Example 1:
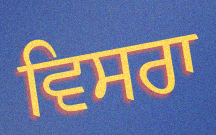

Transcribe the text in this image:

ਵਿਸਰਾ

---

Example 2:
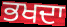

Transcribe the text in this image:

ਭਖਦਾ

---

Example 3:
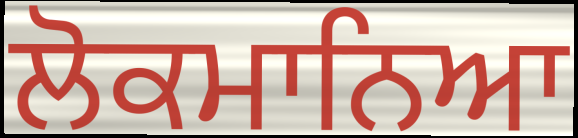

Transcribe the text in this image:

ਲੋਕਮਾਨਿਆ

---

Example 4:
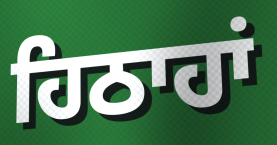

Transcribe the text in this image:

ਹਿਠਾਹਾਂ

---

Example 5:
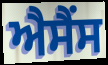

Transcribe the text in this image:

ਐਸੈਂਸ